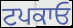
ਟਪਕਾਓ